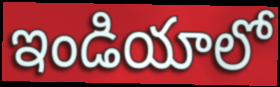
ఇండియాలో